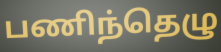
பணிந்தெழு